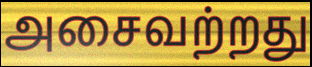
அசைவற்றது